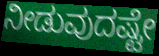
ನೀಡುವುದಷ್ಟೇ